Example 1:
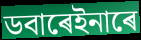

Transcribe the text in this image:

ডবাৰেইনাৰে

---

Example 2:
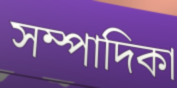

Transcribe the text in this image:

সম্পাদিকা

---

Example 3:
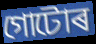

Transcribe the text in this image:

গোটোৰ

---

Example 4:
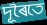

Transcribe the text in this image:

দূৰৈতে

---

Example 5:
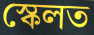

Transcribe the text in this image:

স্কেলত